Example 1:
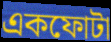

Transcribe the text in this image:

একফোটা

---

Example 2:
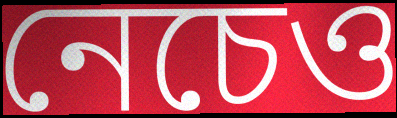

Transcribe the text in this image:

নেচেও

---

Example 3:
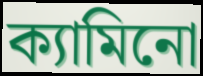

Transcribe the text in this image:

ক্যামিনো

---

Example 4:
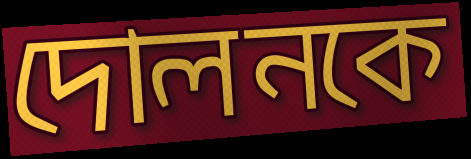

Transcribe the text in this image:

দোলনকে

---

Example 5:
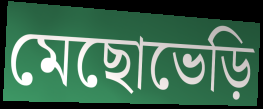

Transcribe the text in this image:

মেছোভেড়ি